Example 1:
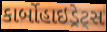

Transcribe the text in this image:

કાર્બોહાઇડ્રેટ્સ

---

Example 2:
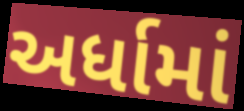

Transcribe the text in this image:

અર્ધામાં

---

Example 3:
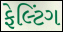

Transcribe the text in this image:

ફેલ્ટિંગ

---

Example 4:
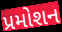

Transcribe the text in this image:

પ્રમોશન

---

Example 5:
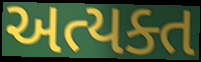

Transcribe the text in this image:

અત્યક્ત